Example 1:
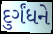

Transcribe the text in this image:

દુર્ગંધને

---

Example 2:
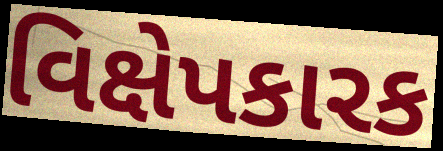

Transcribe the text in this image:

વિક્ષેપકારક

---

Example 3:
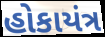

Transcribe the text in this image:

હોકાયંત્ર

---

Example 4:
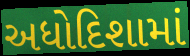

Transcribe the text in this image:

અધોદિશામાં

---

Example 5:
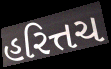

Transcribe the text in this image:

હરિત્તચ